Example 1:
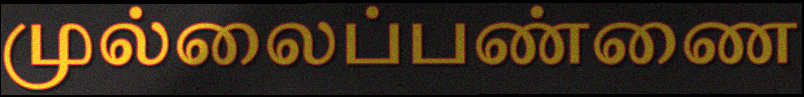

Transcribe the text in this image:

முல்லைப்பண்ணை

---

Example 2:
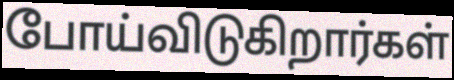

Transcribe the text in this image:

போய்விடுகிறார்கள்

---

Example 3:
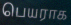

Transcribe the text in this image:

பெயராக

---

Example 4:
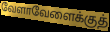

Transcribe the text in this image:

வேளாவேளைக்குத்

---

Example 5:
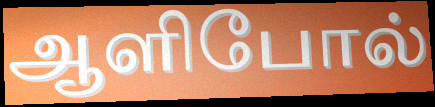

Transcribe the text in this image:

ஆளிபோல்